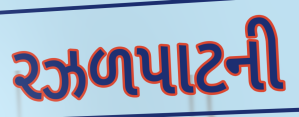
રઝળપાટની